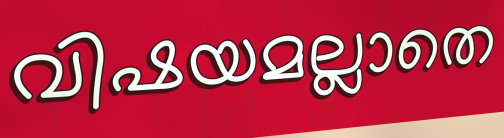
വിഷയമല്ലാതെ